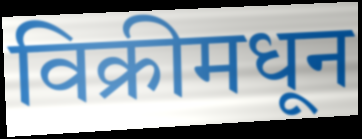
विक्रीमधून